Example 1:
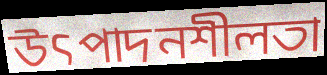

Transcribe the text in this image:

উৎপাদনশীলতা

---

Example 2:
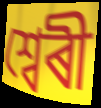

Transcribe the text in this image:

শ্বেৰী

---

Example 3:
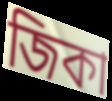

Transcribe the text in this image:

জিকা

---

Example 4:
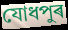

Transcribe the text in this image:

যোধপুৰ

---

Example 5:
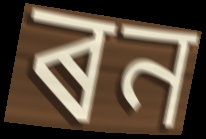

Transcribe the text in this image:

ৰন